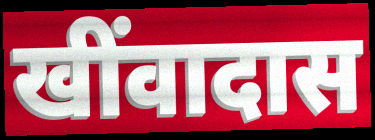
खींवादास